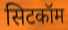
सिटकॉम